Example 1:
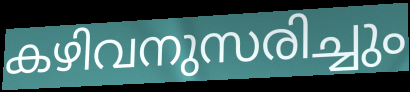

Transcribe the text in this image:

കഴിവനുസരിച്ചും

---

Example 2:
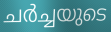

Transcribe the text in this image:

ചർച്ചയുടെ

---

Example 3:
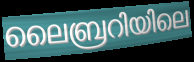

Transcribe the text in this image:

ലൈബ്രറിയിലെ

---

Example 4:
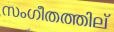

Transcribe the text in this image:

സംഗീതത്തില്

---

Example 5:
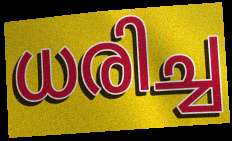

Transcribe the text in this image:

ധരിച്ച